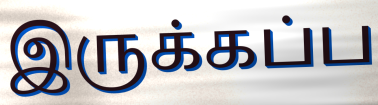
இருக்கப்ப